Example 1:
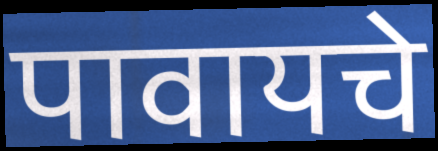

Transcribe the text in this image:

पावायचे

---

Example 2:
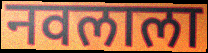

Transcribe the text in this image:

नवलाला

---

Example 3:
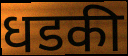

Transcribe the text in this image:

धडकी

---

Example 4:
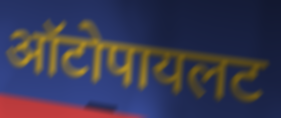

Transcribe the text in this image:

ऑटोपायलट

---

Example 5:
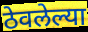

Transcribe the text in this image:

ठेवलेल्या